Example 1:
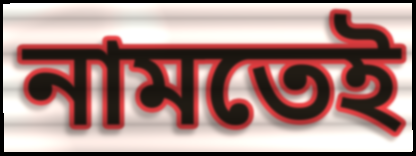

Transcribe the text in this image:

নামতেই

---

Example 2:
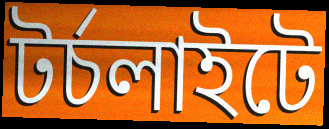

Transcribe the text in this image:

টর্চলাইটে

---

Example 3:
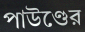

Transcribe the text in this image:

পাউণ্ডের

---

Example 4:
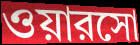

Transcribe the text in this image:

ওয়ারসো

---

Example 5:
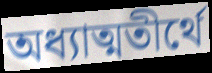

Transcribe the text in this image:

অধ্যাত্মতীর্থে